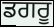
ਡਗਰੂ